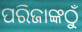
ପରିଜାଙ୍କଠୁଁ